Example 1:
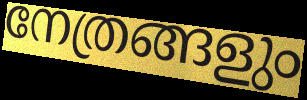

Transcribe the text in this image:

നേത്രങ്ങളും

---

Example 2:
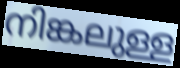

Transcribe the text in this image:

നിങ്കലുള്ള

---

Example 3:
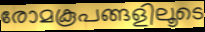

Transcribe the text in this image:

രോമകൂപങ്ങളിലൂടെ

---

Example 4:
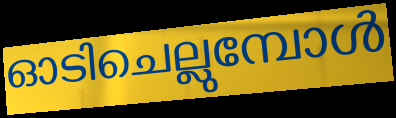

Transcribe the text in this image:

ഓടിചെല്ലുമ്പോൾ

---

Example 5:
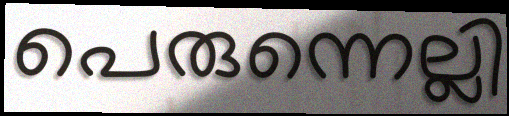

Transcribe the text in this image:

പെരുന്നെല്ലി